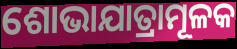
ଶୋଭାଯାତ୍ରାମୂଳକ